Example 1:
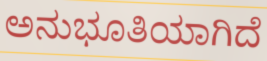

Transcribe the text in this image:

ಅನುಭೂತಿಯಾಗಿದೆ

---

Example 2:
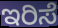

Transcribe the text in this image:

ಇರಿಸೆ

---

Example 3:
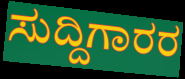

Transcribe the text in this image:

ಸುದ್ದಿಗಾರರ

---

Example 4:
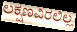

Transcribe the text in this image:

ಲಕ್ಷಣವಿರಲಿಲ್ಲ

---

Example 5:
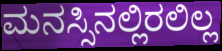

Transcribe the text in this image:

ಮನಸ್ಸಿನಲ್ಲಿರಲಿಲ್ಲ